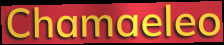
Chamaeleo